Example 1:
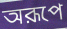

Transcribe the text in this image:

অরূপে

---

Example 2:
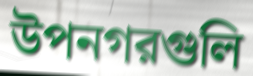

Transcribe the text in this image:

উপনগরগুলি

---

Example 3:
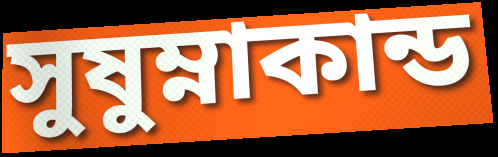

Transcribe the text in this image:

সুষুম্নাকান্ড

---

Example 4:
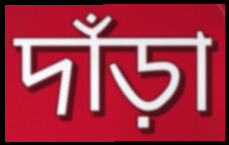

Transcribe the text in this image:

দাঁড়া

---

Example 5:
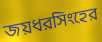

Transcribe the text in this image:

জয়ধরসিংহের